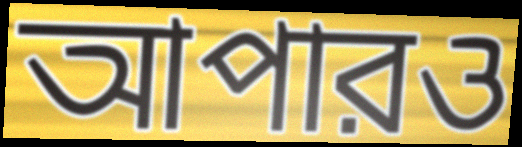
আপারও